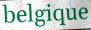
belgique